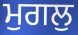
ਮੁਗਲੁ